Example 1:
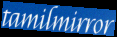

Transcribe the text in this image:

tamilmirror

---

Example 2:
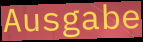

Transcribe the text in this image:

Ausgabe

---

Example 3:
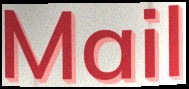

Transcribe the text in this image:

Mail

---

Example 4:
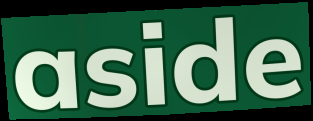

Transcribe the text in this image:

aside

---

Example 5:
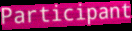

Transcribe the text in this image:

Participant